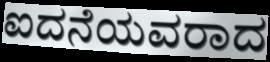
ಐದನೆಯವರಾದ